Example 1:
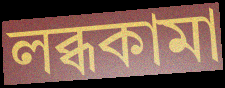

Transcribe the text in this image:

লব্ধকামা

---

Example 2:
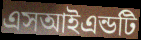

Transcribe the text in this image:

এসআইএন্ডটি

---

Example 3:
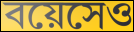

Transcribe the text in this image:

বয়েসেও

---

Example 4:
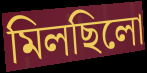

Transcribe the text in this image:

মিলছিলো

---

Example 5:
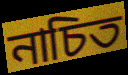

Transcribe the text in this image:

নাচিত